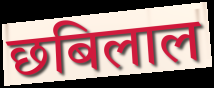
छबिलाल